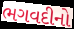
ભગવદીનો